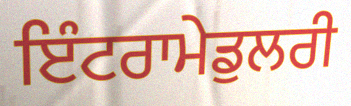
ਇੰਟਰਾਮੇਡੁਲਰੀ